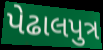
પેઢાલપુત્ર